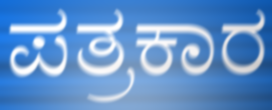
ಪತ್ರಕಾರ